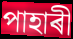
পাহাৰী